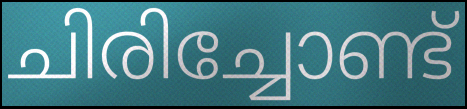
ചിരിച്ചോണ്ട്